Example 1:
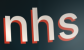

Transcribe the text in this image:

nhs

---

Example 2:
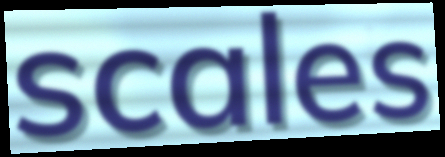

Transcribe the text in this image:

scales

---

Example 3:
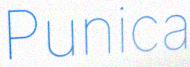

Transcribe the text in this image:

Punica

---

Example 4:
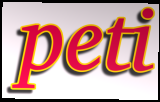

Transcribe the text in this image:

peti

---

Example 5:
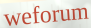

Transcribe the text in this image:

weforum